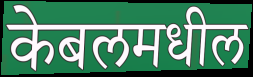
केबलमधील